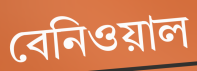
বেনিওয়াল